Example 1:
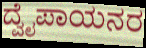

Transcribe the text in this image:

ದ್ವೈಪಾಯನರ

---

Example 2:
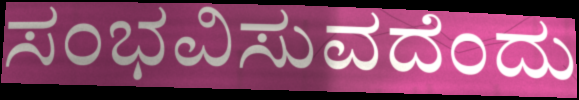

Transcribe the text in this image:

ಸಂಭವಿಸುವದೆಂದು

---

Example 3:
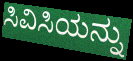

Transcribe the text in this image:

ಸಿವಿಸಿಯನ್ನು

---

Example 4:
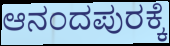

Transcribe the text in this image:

ಆನಂದಪುರಕ್ಕೆ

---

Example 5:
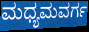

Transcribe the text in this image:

ಮಧ್ಯಮವರ್ಗ